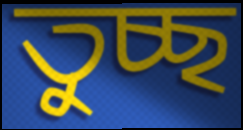
তুচ্ছ